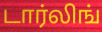
டார்லிங்